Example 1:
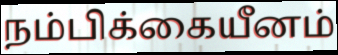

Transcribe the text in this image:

நம்பிக்கையீனம்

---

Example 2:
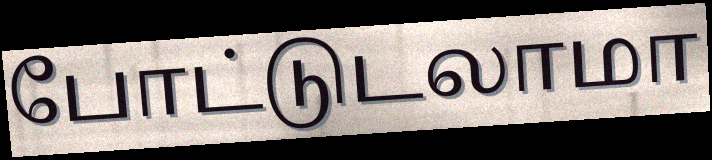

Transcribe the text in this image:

போட்டுடலாமா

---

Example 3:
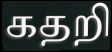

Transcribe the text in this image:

கதறி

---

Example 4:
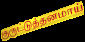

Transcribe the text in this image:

குருட்டுத்தனமாய்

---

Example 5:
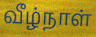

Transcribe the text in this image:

வீழ்நாள்